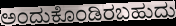
ಅಂದುಕೊಂಡಿರಬಹುದು